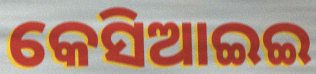
କେସିଆଇଇ